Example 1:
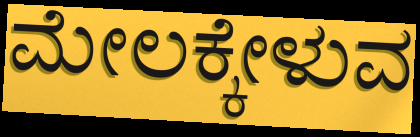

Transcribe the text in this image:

ಮೇಲಕ್ಕೇಳುವ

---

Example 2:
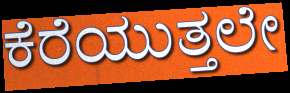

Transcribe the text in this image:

ಕೆರೆಯುತ್ತಲೇ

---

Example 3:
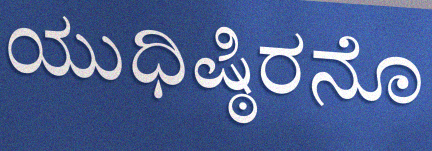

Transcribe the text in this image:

ಯುಧಿಷ್ಠಿರನೊ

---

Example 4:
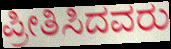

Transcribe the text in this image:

ಪ್ರೀತಿಸಿದವರು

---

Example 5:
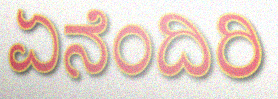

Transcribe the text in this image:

ಏನೆಂದಿರಿ